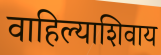
वाहिल्याशिवाय